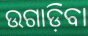
ଉଗାଡ଼ିବା